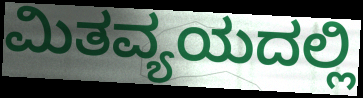
ಮಿತವ್ಯಯದಲ್ಲಿ